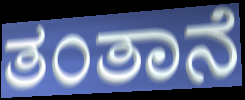
ತಂತಾನೆ